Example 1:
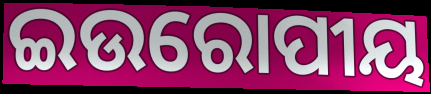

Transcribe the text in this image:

ଇଉରୋପୀୟ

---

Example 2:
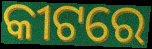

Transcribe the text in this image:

କୀଟରେ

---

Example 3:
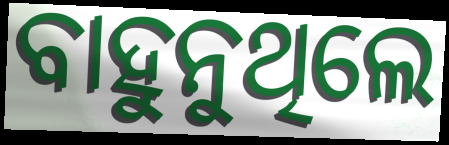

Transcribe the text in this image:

ବାହୁନୁଥିଲେ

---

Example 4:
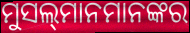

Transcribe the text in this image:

ମୁସଲ୍‌ମାନମାନଙ୍କର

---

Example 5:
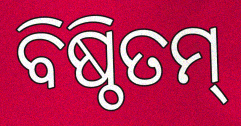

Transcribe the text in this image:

ବିଷ୍ଠିତମ୍